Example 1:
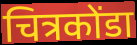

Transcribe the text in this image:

चित्रकोंडा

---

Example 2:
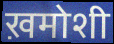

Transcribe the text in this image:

ख़मोशी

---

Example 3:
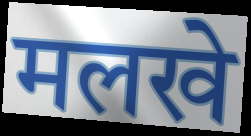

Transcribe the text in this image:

मलखे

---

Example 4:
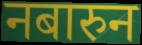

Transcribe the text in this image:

नबारुन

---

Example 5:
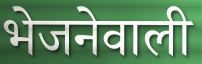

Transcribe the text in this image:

भेजनेवाली